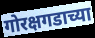
गोरक्षगडाच्या